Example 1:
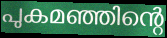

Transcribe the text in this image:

പുകമഞ്ഞിന്റെ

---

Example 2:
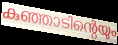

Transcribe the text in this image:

കുഞ്ഞാടിന്റെയും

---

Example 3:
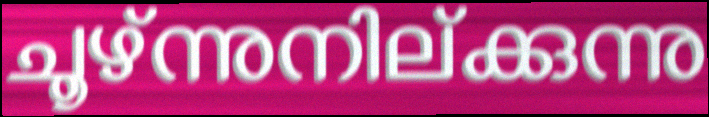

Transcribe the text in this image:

ചൂഴ്ന്നുനില്ക്കുന്നു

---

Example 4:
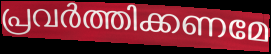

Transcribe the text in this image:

പ്രവർത്തിക്കണമേ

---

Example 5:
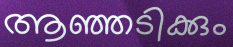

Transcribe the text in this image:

ആഞ്ഞടിക്കും